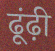
ढूंढ़ी